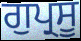
ਗੁਪ੍ਰਸੂ